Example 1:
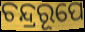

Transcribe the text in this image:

ଚନ୍ଦ୍ରରୂପେ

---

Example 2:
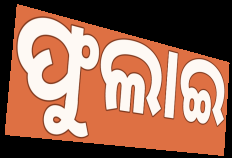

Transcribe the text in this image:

ଫୁଲାଇ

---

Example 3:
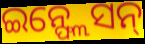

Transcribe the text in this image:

ଇନ୍ଫ୍ଲେସନ୍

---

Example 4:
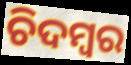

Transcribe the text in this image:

ଚିଦମ୍ବର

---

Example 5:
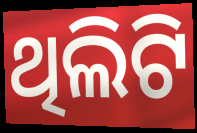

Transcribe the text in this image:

ଥିଲିଟି